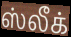
ஸ்லீக்